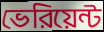
ভেরিয়েন্ট